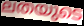
ലതയുടെ